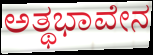
ಅತ್ಥಭಾವೇನ